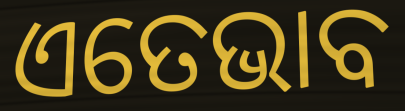
ଏତେଭାବ